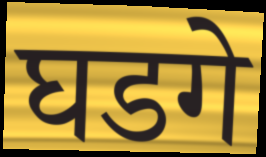
घडगे